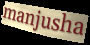
manjusha